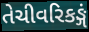
તેચીવરિકઙ્ગં